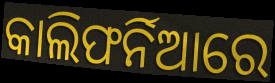
କାଲିଫର୍ନିଆରେ